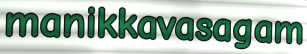
manikkavasagam